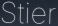
Stier